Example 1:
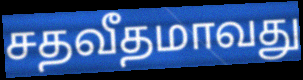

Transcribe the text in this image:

சதவீதமாவது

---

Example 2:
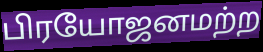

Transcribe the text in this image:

பிரயோஜனமற்ற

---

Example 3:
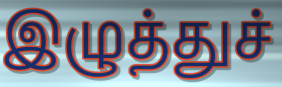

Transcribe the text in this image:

இழுத்துச்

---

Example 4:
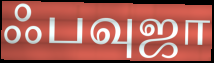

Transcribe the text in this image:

ஃபவுஜா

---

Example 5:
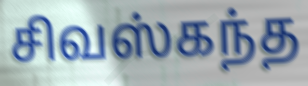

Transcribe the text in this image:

சிவஸ்கந்த